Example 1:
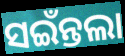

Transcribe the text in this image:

ସଇଁନ୍ତଲା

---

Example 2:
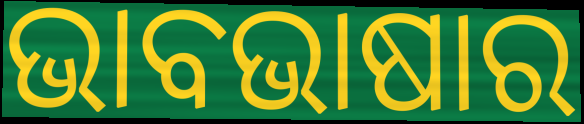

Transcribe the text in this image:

ଭାବଭାଷାର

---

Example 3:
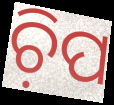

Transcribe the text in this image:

ଚ଼ିପ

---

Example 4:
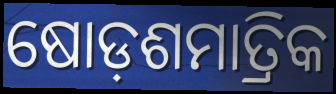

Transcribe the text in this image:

ଷୋଡ଼ଶମାତ୍ରିକ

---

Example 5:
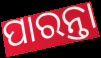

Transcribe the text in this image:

ପାରନ୍ତା